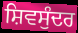
ਸ਼ਿਵਸੁੰਦਰ